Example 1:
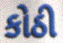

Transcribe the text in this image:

કોઠી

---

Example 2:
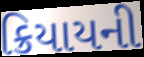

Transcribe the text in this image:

ક્રિયાયની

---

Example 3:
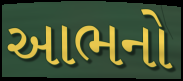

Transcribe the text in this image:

આભનો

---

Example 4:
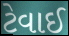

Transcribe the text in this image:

ટેવાઈ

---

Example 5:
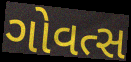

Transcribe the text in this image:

ગોવત્સ